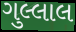
ગુલ્લાલ